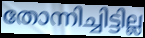
തോന്നിച്ചിട്ടില്ല